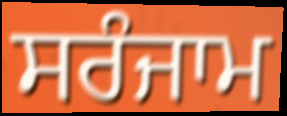
ਸਰੰਜਾਮ